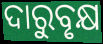
ଦାରୁବୃକ୍ଷ